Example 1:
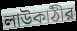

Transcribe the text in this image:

লাউকাঠীর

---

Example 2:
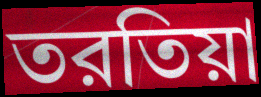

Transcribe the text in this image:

তরতিয়া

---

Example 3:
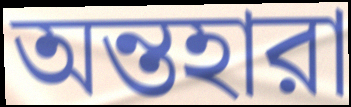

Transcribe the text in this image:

অন্তহারা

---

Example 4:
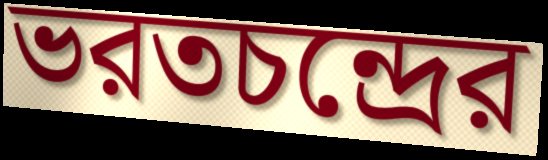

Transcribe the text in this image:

ভরতচন্দ্রের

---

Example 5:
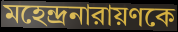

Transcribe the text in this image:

মহেন্দ্রনারায়ণকে